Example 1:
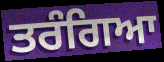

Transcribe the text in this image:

ਤਰੰਗਿਆ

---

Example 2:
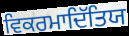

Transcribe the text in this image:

ਵਿਕਰਮਾਦਿੱਤਿਯ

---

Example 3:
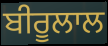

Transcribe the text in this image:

ਬੀਰੂਲਾਲ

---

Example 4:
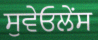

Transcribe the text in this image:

ਸੁਵੇਓਲੇਂਸ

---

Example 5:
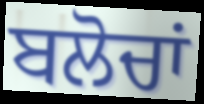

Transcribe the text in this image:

ਬਲੋਚਾਂ